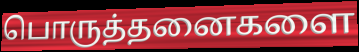
பொருத்தனைகளை